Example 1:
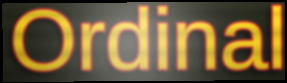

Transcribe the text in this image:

Ordinal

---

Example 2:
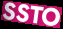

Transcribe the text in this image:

SSTO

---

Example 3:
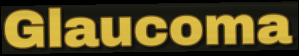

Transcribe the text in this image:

Glaucoma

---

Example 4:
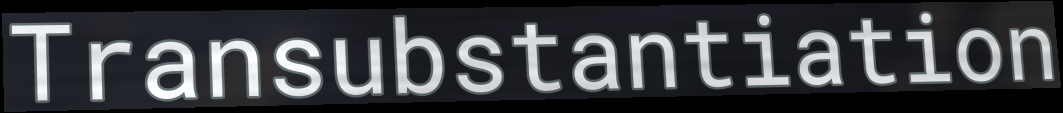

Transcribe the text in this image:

Transubstantiation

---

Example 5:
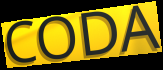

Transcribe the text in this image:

CODA